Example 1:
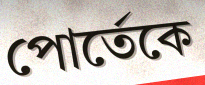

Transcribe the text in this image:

পোর্তেকে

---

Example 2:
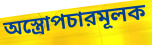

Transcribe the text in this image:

অস্ত্রোপচারমূলক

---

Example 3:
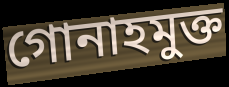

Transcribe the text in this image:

গোনাহমুক্ত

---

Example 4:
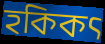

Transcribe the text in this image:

হকিকৎ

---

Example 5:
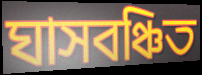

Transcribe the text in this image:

ঘাসবঞ্চিত